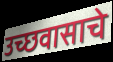
उच्छवासाचे